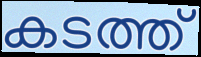
കടത്ത്